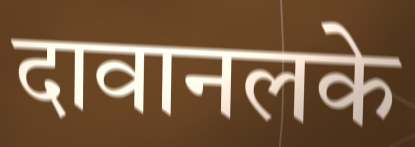
दावानलके